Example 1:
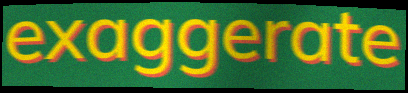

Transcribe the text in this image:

exaggerate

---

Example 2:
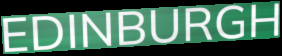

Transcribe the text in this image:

EDINBURGH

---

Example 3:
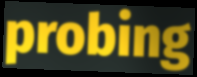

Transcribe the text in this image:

probing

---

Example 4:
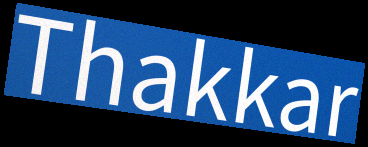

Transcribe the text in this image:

Thakkar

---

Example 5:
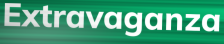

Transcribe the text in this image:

Extravaganza